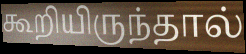
கூறியிருந்தால்